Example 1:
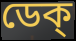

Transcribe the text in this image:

ডেক্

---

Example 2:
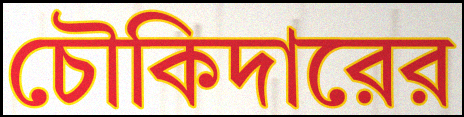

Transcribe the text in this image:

চৌকিদারের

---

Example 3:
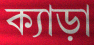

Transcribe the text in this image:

ক্যাড়া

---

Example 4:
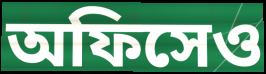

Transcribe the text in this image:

অফিসেও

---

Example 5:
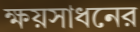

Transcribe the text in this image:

ক্ষয়সাধনের